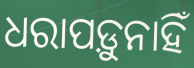
ଧରାପଡ଼ୁନାହିଁ